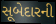
સૂબેદારની